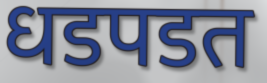
धडपडत